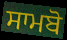
ਸਾਮਬੋ